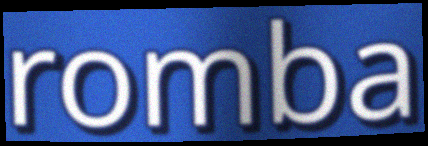
romba